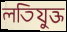
লতিযুক্ত